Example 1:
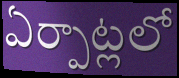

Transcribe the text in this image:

ఏర్పాట్లలో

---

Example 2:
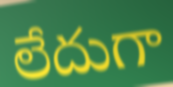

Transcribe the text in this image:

లేదుగా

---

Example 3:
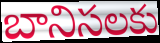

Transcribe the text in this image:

బానిసలకు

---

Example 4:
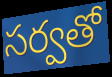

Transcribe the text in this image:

సర్వతో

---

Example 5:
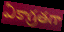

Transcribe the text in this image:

ఏకాగ్రతగా